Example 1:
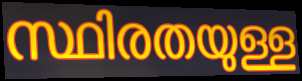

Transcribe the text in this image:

സ്ഥിരതയുള്ള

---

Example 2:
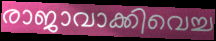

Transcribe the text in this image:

രാജാവാക്കിവെച്ച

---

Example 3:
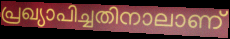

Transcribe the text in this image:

പ്രഖ്യാപിച്ചതിനാലാണ്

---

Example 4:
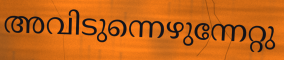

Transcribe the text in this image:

അവിടുന്നെഴുന്നേറ്റു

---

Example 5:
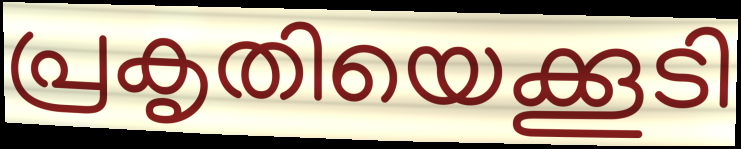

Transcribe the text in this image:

പ്രകൃതിയെക്കൂടി